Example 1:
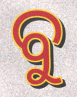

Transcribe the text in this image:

ବୁ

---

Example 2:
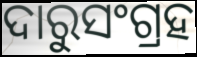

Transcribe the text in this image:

ଦାରୁସଂଗ୍ରହ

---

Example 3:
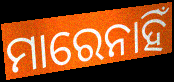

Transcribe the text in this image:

ମାରେନାହିଁ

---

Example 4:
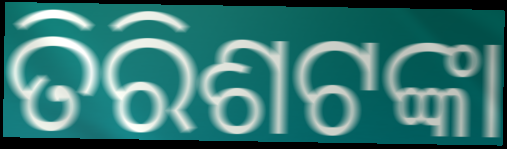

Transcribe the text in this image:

ତିରିଶଟଙ୍କା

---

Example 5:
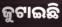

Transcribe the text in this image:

ଜୁଟାଇଛି